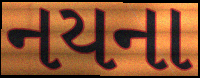
નયના